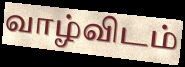
வாழ்விடம்